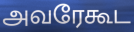
அவரேகூட